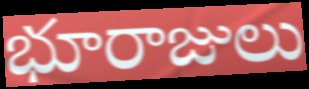
భూరాజులు